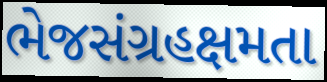
ભેજસંગ્રહક્ષમતા